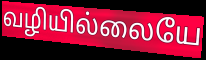
வழியில்லையே